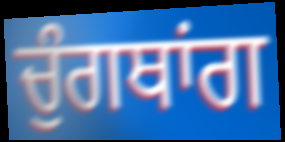
ਚੁੰਗਥਾਂਗ